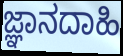
ಜ್ಞಾನದಾಹಿ